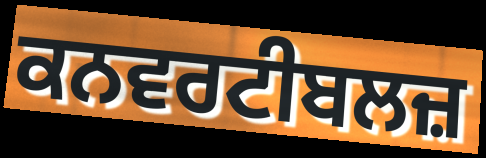
ਕਨਵਰਟੀਬਲਜ਼